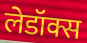
लेडॉक्स